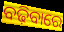
ବଢ଼ିବାରେ